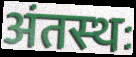
अंतस्थः